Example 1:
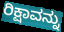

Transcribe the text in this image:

ರಿಕ್ಷಾವನ್ನು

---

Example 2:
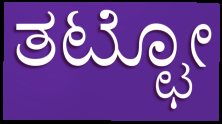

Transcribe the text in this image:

ತಟ್ಟೋ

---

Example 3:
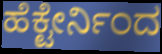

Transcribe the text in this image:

ಹೆಕ್ಟೇರ್ನಿಂದ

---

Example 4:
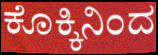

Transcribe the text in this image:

ಕೊಕ್ಕಿನಿಂದ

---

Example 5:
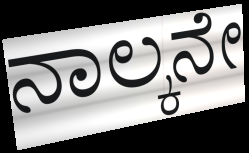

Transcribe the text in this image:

ನಾಲ್ಕನೇ